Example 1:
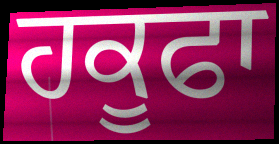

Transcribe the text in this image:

ਹਕੂਫਾ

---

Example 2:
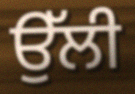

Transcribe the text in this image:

ਉੱਲੀ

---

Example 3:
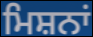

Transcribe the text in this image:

ਮਿਸ਼ਨਾਂ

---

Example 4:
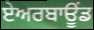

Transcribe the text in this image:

ਏਅਰਬਾਊਂਡ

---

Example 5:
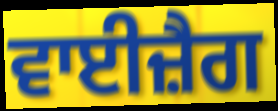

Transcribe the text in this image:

ਵਾਈਜ਼ੈਗ